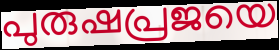
പുരുഷപ്രജയെ